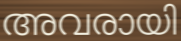
അവരായി